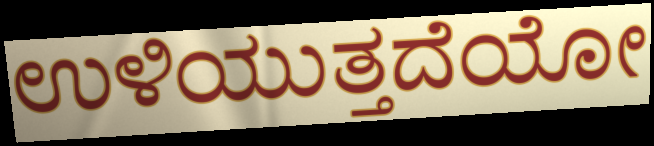
ಉಳಿಯುತ್ತದೆಯೋ